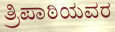
ತ್ರಿಪಾಠಿಯವರ